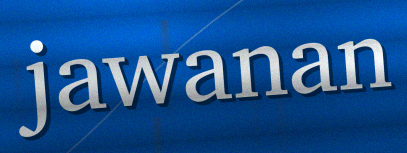
jawanan